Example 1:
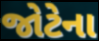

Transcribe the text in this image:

જોટેના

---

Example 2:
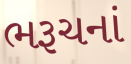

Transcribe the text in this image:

ભરૂચનાં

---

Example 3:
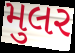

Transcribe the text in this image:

મુલર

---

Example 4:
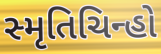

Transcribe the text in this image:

સ્મૃતિચિન્હો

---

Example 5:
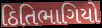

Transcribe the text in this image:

ઠિતિભાગિયો